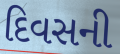
દિવસની